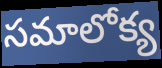
సమాలోక్య